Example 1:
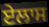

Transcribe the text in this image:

ਏਲਾਸ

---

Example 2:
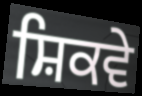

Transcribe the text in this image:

ਸ਼ਿਕਵੇ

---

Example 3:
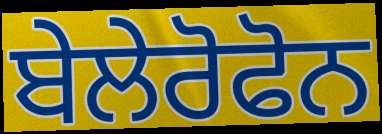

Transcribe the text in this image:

ਬੇਲੇਰੋਫੋਨ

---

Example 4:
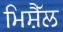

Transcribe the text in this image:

ਮਿਸ਼ੈੱਲ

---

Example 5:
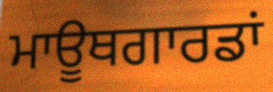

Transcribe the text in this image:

ਮਾਊਥਗਾਰਡਾਂ